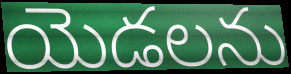
యెడలను